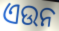
ଏଉନ